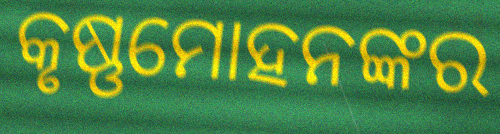
କୃଷ୍ଣମୋହନଙ୍କର